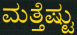
ಮತ್ತೆಷ್ಟು